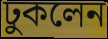
ঢুকলেন